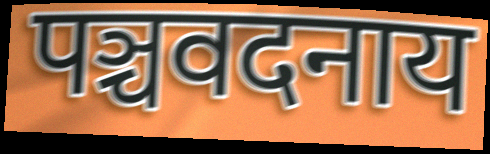
पञ्चवदनाय